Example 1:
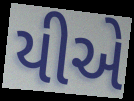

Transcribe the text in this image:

યીએ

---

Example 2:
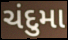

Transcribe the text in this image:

ચંદુમા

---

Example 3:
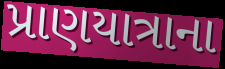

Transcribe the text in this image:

પ્રાણયાત્રાના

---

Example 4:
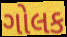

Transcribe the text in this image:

ગોલક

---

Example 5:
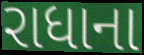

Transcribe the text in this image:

રાધાના